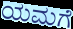
ಯಮಗೆ